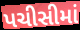
પચીસીમાં